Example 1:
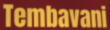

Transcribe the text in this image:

Tembavani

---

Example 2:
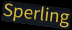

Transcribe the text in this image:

Sperling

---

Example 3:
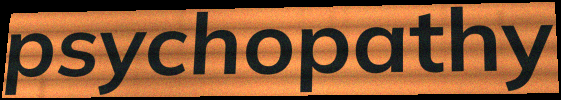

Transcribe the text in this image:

psychopathy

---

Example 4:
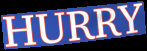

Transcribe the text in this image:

HURRY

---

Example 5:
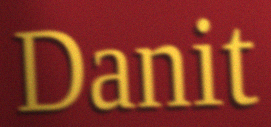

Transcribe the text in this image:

Danit